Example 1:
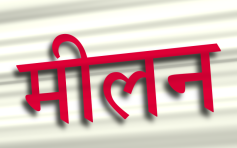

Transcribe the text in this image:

मीलन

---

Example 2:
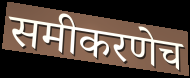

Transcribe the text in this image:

समीकरणेच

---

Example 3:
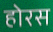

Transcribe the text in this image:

होरस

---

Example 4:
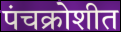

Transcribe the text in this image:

पंचक्रोशीत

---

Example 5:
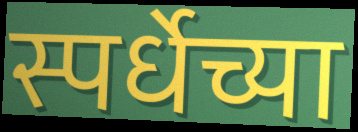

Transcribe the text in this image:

स्पर्धेच्या